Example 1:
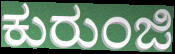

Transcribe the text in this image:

ಕುರುಂಜಿ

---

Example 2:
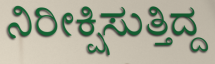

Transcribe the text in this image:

ನಿರೀಕ್ಷಿಸುತ್ತಿದ್ದ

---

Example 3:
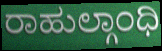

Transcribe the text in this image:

ರಾಹುಲ್ಗಾಂಧಿ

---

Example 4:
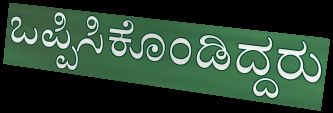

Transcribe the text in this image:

ಒಪ್ಪಿಸಿಕೊಂಡಿದ್ದರು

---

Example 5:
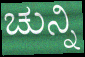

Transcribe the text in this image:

ಚುನ್ನಿ